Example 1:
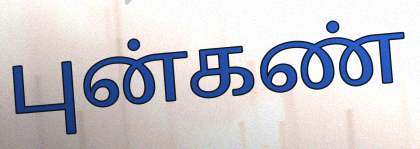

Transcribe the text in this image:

புன்கண்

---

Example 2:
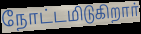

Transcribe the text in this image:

நோட்டமிடுகிறார்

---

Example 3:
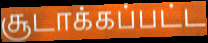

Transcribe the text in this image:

சூடாக்கப்பட்ட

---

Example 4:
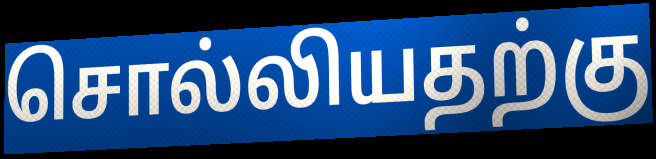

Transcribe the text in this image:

சொல்லியதற்கு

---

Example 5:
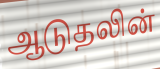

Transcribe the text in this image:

ஆடுதலின்